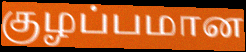
குழப்பமான